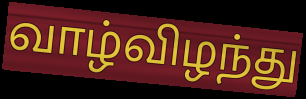
வாழ்விழந்து